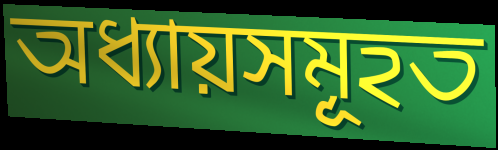
অধ্যায়সমূহত